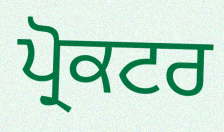
ਪ੍ਰੋਕਟਰ